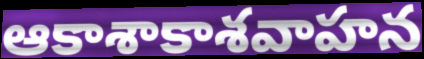
ఆకాశాకాశవాహన